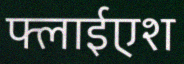
फ्लाईएश